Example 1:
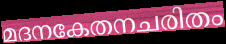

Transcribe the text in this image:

മദനകേതനചരിതം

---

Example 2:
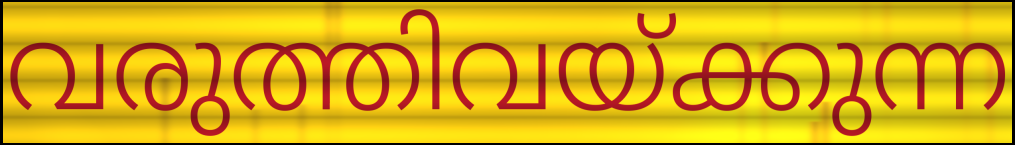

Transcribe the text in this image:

വരുത്തിവയ്ക്കുന്ന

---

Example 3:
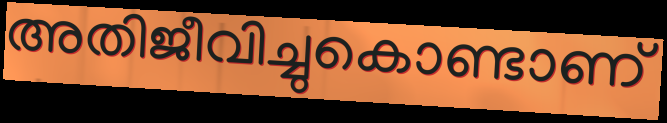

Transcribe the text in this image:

അതിജീവിച്ചുകൊണ്ടാണ്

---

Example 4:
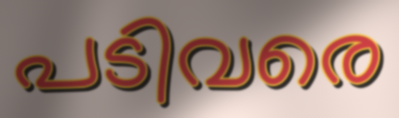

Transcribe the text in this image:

പടിവരെ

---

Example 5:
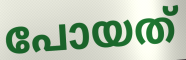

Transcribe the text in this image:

പോയത്